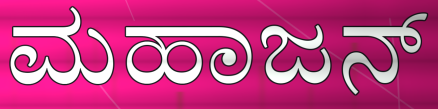
ಮಹಾಜನ್